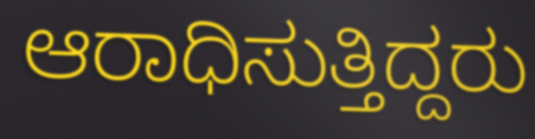
ಆರಾಧಿಸುತ್ತಿದ್ದರು